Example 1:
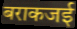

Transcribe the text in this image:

बराकजई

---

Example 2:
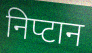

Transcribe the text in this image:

निप्टान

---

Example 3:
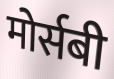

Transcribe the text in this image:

मोर्सबी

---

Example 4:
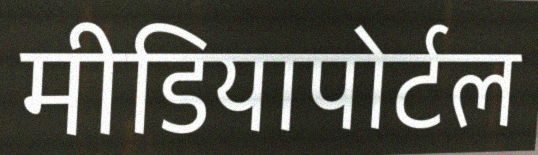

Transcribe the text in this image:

मीडियापोर्टल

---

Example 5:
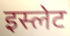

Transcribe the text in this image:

इस्लेट